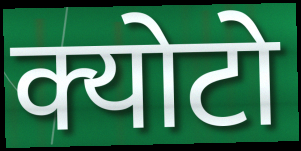
क्‍योटो